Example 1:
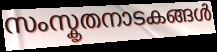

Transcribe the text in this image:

സംസ്കൃതനാടകങ്ങൾ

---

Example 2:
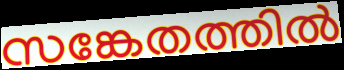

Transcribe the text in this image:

സങ്കേതത്തിൽ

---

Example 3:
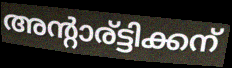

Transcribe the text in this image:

അന്റാര്ട്ടിക്കന്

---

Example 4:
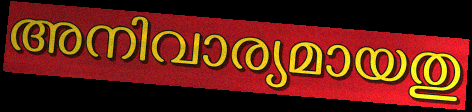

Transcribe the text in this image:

അനിവാര്യമായതു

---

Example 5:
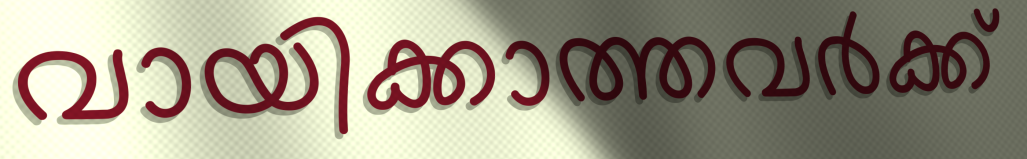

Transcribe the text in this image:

വായിക്കാത്തവർക്ക്